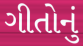
ગીતોનું